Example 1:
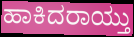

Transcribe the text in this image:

ಹಾಕಿದರಾಯ್ತು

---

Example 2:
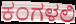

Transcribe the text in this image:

ಕಂಗಳಲಿ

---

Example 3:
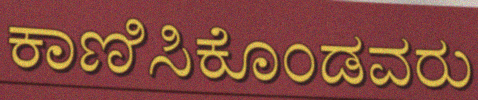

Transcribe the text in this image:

ಕಾಣಿಸಿಕೊಂಡವರು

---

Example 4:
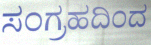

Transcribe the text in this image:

ಸಂಗ್ರಹದಿಂದ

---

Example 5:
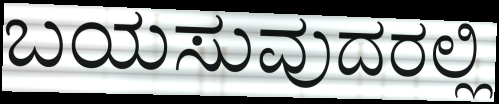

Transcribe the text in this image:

ಬಯಸುವುದರಲ್ಲಿ